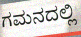
ಗಮನದಲ್ಲಿ